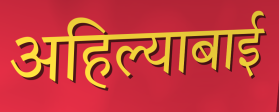
अहिल्याबाई